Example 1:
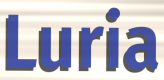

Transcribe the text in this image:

Luria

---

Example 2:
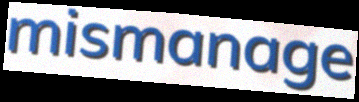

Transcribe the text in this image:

mismanage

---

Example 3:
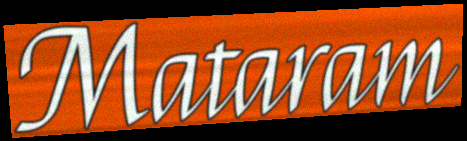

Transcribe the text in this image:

Mataram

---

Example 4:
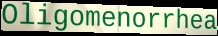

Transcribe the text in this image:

Oligomenorrhea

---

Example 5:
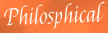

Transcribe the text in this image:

Philosphical